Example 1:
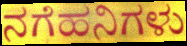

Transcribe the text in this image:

ನಗೆಹನಿಗಳು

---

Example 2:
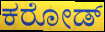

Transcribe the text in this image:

ಕರೋಡ್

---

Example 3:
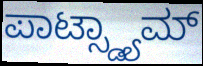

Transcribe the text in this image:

ಪಾಟ್ಸ್ಡ್ಯಾಮ್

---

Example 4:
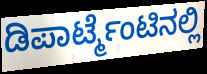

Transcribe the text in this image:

ಡಿಪಾರ್ಟ್ಮೆಂಟಿನಲ್ಲಿ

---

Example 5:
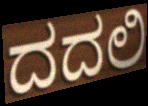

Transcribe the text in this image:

ದದಲಿ